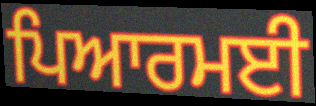
ਪਿਆਰਮਈ